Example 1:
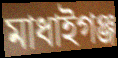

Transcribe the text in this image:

মাধাইগঞ্জ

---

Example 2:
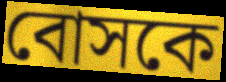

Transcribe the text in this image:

বোসকে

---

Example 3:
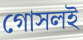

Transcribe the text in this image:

গোসলই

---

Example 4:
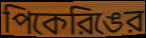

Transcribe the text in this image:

পিকেরিঙের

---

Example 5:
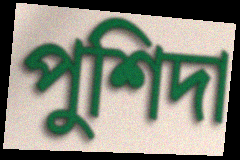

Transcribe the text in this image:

পুশিদা